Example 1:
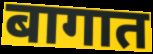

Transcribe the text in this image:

बागात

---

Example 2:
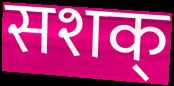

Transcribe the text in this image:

सशक्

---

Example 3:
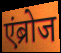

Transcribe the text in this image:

एंब्रोज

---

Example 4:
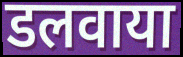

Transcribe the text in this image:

डलवाया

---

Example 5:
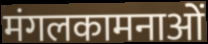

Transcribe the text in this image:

मंगलकामनाओं